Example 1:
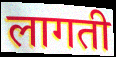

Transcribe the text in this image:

लागती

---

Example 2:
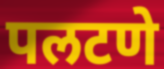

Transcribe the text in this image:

पलटणे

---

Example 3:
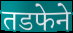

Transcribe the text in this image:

तडफेने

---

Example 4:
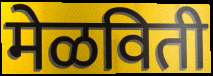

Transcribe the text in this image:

मेळविती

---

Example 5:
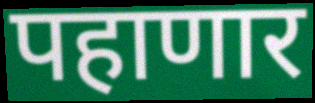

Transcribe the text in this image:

पहाणार